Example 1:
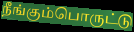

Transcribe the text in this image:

நீங்கும்பொருட்டு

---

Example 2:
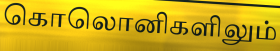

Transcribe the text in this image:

கொலொனிகளிலும்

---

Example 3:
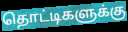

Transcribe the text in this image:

தொட்டிகளுக்கு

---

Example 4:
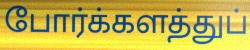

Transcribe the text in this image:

போர்க்களத்துப்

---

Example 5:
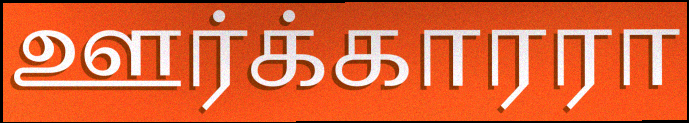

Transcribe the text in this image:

ஊர்க்காரரா